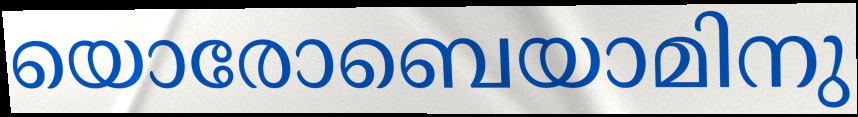
യൊരോബെയാമിനു